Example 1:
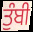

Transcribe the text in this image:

ਤੁੰਬੀ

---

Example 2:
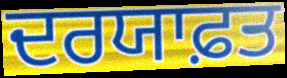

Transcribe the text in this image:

ਦਰਯਾਫ਼ਤ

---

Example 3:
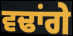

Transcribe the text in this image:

ਵਢਾਂਗੇ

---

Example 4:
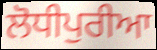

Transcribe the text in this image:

ਲੋਧੀਪੁਰੀਆ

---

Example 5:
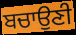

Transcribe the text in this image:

ਬਚਾਉਣੀ